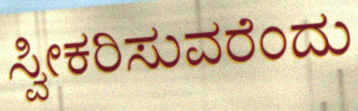
ಸ್ವೀಕರಿಸುವರೆಂದು